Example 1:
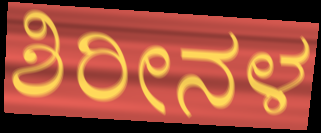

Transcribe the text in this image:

ಶಿರೀನಳ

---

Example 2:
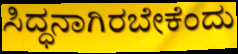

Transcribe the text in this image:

ಸಿದ್ಧನಾಗಿರಬೇಕೆಂದು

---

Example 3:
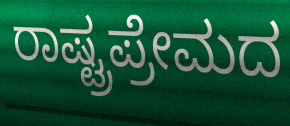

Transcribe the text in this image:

ರಾಷ್ಟ್ರಪ್ರೇಮದ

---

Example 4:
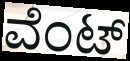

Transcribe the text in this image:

ವೆಂಟ್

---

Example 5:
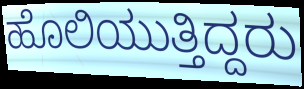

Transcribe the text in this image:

ಹೊಲಿಯುತ್ತಿದ್ದರು